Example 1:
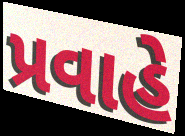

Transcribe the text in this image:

પ્રવાહે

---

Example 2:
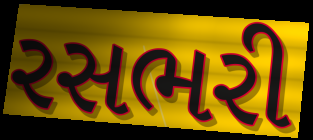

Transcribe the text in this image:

રસભરી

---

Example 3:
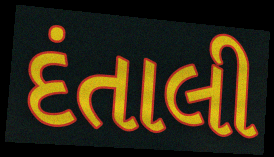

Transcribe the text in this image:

દંતાલી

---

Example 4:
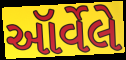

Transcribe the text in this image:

ઑર્વેલે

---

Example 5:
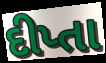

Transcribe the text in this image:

દીપ્તા